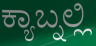
ಕ್ಯಾಬ್ನಲ್ಲಿ